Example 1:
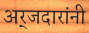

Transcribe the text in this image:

अर्जदारांनी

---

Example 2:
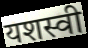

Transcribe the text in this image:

यशस्‍वी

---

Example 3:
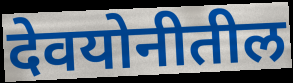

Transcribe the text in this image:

देवयोनीतील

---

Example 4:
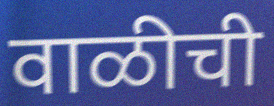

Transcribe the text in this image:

वाळीची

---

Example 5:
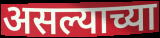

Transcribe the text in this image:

असल्याच्या